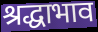
श्रद्धाभाव